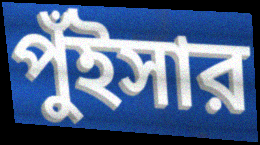
পুঁইসার